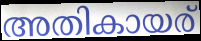
അതികായര്